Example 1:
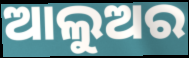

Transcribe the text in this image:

ଆଲୁଅର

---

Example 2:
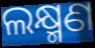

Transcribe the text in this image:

ଲକ୍ଷ୍ମଣ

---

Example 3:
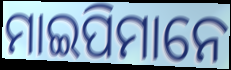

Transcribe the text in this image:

ମାଇପିମାନେ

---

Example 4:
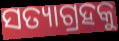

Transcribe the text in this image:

ସତ୍ୟାଗ୍ରହକୁ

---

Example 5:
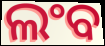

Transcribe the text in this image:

ଲଂବ